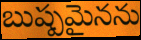
బుష్పమైనను